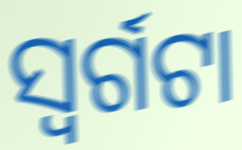
ସ୍ୱର୍ଗଟା